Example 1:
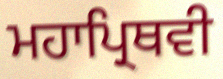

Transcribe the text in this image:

ਮਹਾਪ੍ਰਿਥਵੀ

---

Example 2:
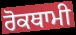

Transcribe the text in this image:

ਰੋਕਥਾਮੀ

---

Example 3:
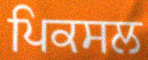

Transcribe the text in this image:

ਪਿਕਸਲ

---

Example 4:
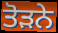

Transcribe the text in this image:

ਤੋੜਨੇ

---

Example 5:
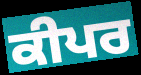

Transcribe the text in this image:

ਕੀਪਰ